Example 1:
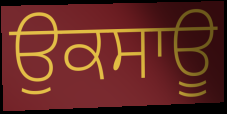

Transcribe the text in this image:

ਉਕਸਾਊ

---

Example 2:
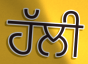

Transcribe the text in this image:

ਹੱਲੀ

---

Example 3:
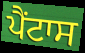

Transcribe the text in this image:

ਪੈਂਟਾਸ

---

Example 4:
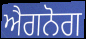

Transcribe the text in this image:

ਐਗਨੋਗ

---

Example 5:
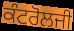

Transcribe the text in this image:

ਕੰਟਰੋਲਜੀ